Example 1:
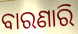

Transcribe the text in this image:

ବାରଣାରି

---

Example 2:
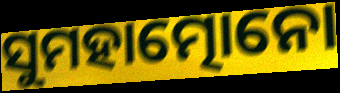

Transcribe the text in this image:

ସୁମହାତ୍ମୋନୋ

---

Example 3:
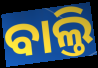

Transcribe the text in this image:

ବାଲ୍ତି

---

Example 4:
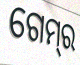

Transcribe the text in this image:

ଗେମ୍‌ର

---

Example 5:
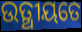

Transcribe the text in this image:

ଉତ୍ଥୀୟତେ